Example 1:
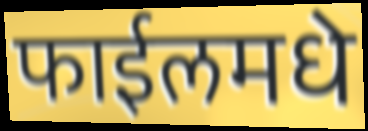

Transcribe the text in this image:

फाईलमधे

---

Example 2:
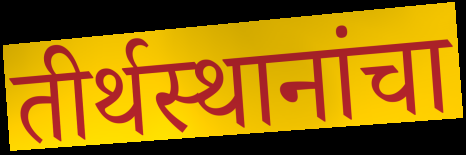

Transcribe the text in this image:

तीर्थस्थानांचा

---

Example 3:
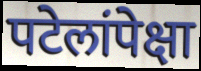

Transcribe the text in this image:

पटेलांपेक्षा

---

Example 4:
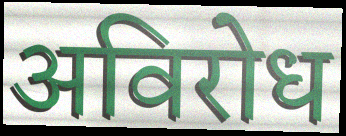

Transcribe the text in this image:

अविरोध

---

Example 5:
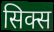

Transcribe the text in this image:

सिक्स